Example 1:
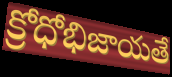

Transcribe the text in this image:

క్రోధోభిజాయతే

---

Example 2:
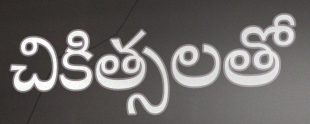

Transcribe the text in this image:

చికిత్సలతో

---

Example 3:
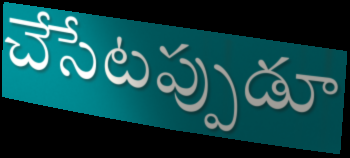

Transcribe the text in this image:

చేసేటప్పుడూ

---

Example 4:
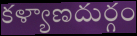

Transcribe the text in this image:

కళ్యాణదుర్గం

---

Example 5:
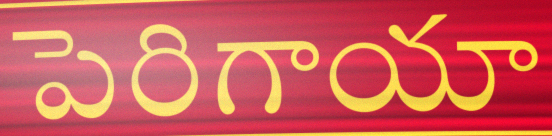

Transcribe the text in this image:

పెరిగాయా